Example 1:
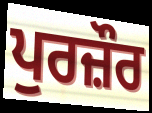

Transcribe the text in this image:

ਪੁਰਜ਼ੌਰ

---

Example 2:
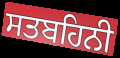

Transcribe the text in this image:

ਸਤਬਹਿਨੀ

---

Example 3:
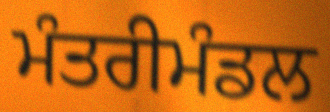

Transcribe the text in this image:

ਮੰਤਰੀਮੰਡਲ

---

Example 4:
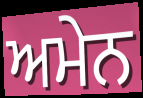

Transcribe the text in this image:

ਅਮੇਨ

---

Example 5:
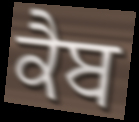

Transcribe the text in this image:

ਕੈਬ